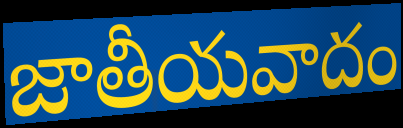
జాతీయవాదం